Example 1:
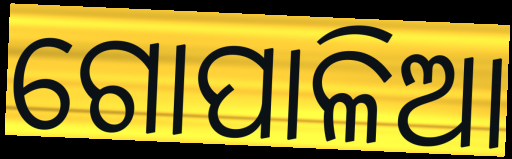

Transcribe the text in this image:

ଗୋପାଳିଆ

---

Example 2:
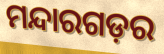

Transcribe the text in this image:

ମନ୍ଦାରଗଡ଼ର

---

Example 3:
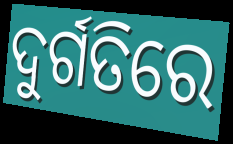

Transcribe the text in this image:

ଦୁର୍ଗତିରେ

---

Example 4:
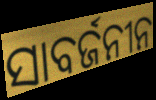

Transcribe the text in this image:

ସାବର୍ଜନୀନ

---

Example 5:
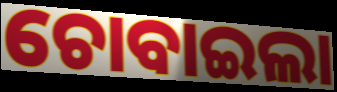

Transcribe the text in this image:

ଚୋବାଇଲା